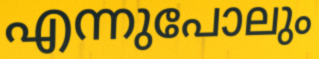
എന്നുപോലും